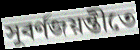
সুবর্ণজয়ন্তীতে